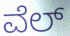
ವೆಲ್